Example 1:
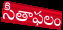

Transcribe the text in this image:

సీతాఫలం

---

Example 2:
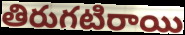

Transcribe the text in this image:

తిరుగటిరాయి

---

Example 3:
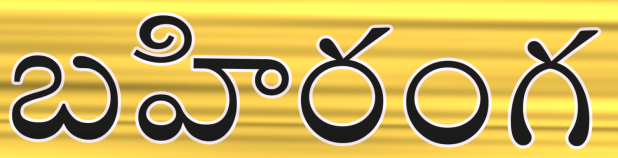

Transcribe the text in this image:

బహిరంగ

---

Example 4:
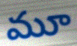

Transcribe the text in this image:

మూ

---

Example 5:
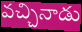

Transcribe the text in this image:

వచ్చినాడు